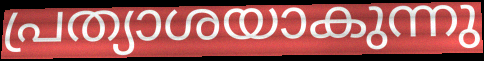
പ്രത്യാശയാകുന്നു